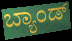
ಬ್ಯಾಂಡ್